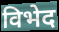
विभेद